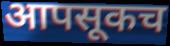
आपसूकच